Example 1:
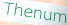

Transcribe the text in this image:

Thenum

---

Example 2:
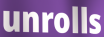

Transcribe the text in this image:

unrolls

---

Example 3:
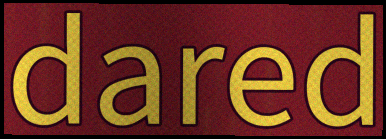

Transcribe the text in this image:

dared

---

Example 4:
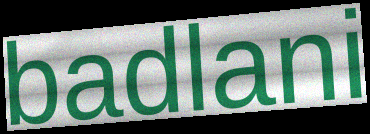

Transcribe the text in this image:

badlani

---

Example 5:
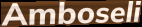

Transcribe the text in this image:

Amboseli